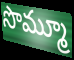
సొమ్మూ